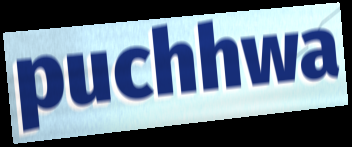
puchhwa